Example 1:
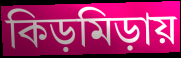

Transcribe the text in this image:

কিড়মিড়ায়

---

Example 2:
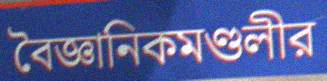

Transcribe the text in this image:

বৈজ্ঞানিকমণ্ডলীর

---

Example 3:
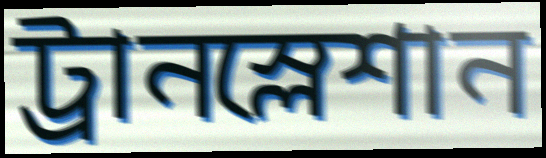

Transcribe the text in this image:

ট্রানস্লেশান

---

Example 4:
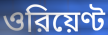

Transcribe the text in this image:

ওরিয়েণ্ট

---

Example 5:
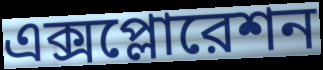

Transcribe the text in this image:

এক্সপ্লোরেশন